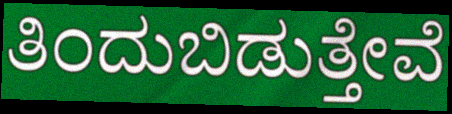
ತಿಂದುಬಿಡುತ್ತೇವೆ